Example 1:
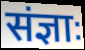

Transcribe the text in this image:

संज्ञाः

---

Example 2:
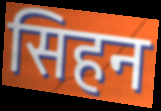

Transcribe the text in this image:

सिहन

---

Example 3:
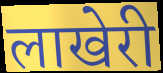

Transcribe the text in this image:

लाखेरी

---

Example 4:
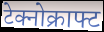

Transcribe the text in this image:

टेक्नोक्राफ्ट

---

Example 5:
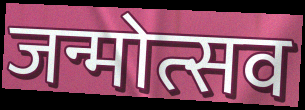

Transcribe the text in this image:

जन्मोत्सव